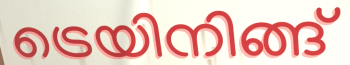
ട്രെയിനിങ്ങ്